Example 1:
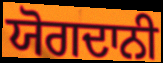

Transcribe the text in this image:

ਯੋਗਦਾਨੀ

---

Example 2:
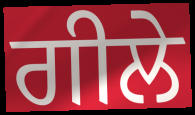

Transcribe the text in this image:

ਗੀਲੇ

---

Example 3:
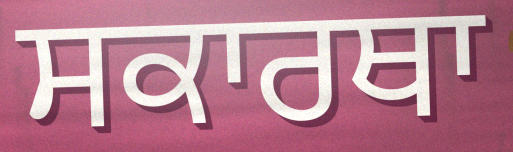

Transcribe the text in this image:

ਸਕਾਰਥਾ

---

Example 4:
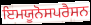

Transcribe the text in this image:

ਇਮਯੂਨੋਸਪਰੈਸਨ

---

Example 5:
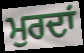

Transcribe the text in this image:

ਮੁਰਦਾਂ